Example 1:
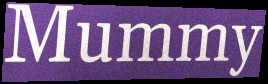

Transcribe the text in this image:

Mummy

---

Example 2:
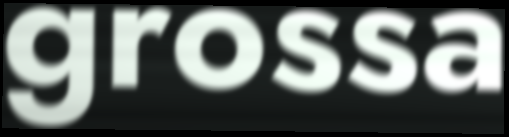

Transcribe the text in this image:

grossa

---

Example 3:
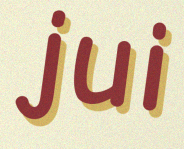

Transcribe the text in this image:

jui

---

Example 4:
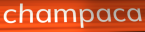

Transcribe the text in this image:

champaca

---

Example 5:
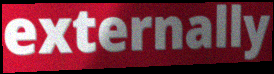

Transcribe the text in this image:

externally